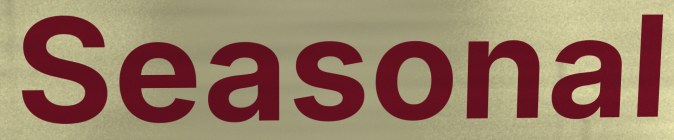
Seasonal